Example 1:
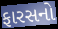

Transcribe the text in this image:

ફારસનો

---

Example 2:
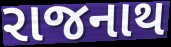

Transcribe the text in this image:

રાજનાથ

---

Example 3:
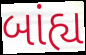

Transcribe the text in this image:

બાંહ્ય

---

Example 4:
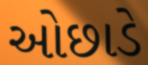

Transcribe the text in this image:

ઓછાડે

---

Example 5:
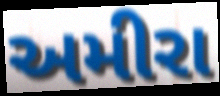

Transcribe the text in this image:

અમીરા